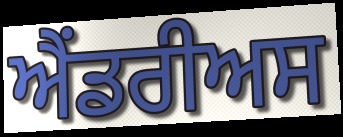
ਐਂਡਰੀਅਸ